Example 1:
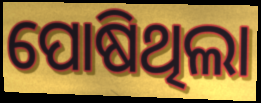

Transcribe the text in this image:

ପୋଷିଥିଲା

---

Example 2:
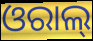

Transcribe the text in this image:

ଓରାଲ୍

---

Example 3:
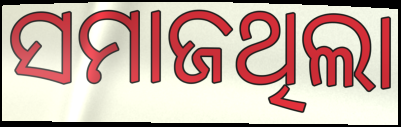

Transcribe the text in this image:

ସମାଜଥିଲା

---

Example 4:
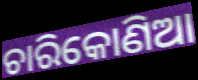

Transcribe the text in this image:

ଚାରିକୋଣିଆ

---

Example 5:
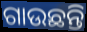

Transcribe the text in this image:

ଗାଉଛନ୍ତି